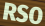
RSO